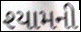
શ્યામની